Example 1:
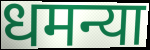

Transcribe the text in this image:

धमन्या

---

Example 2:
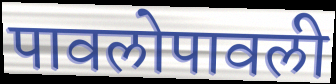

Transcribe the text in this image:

पावलोपावली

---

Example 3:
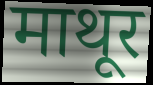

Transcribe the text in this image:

माथूर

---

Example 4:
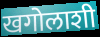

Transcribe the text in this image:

खगोलाशी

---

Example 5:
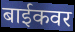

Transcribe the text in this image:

बाईकवर